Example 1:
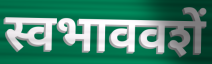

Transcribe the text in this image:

स्वभाववशें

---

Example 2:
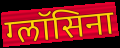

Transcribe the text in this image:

ग्लॉसिना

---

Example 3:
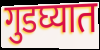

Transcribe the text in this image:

गुडघ्यात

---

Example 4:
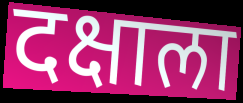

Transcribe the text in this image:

दक्षाला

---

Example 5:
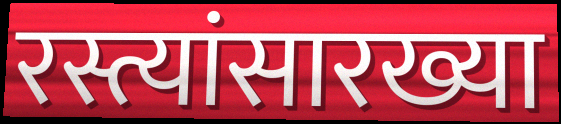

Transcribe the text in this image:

रस्त्यांसारख्या